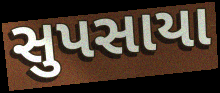
સુપસાયા